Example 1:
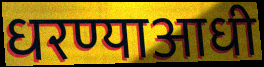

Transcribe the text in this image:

धरण्याआधी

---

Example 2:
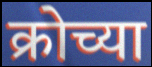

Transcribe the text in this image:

क्रोच्या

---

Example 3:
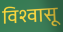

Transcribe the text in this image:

विश्वासू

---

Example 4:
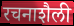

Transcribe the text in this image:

रचनाशैली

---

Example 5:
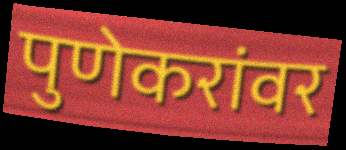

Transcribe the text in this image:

पुणेकरांवर